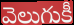
వెలుగుకీ